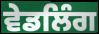
ਵੇਡਲਿੰਗ